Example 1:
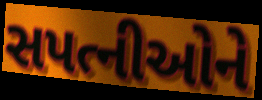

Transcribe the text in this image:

સપત્નીઓને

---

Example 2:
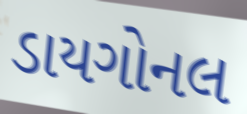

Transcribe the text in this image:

ડાયગોનલ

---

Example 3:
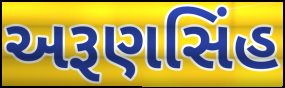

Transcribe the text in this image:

અરૂણસિંહ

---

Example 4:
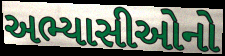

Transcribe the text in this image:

અભ્યાસીઓનો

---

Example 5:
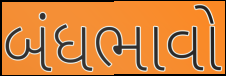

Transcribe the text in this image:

બંધભાવો